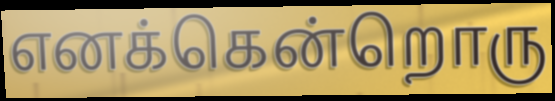
எனக்கென்றொரு